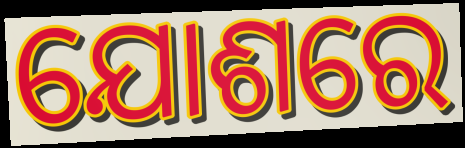
ଯୋଶରେ